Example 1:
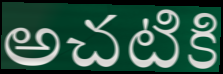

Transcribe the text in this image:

అచటికి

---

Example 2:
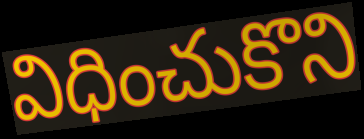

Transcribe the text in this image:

విధించుకొని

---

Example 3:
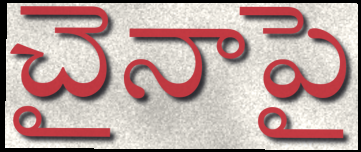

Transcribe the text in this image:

చైనాపై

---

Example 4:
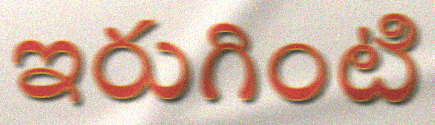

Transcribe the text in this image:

ఇరుగింటి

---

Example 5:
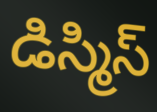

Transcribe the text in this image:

డిస్మిస్